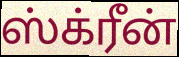
ஸ்க்ரீன்